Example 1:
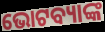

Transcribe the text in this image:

ଭୋଟବ୍ୟାଙ୍କ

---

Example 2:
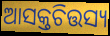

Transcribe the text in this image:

ଆସକ୍ତଚିତ୍ତସ୍ୟ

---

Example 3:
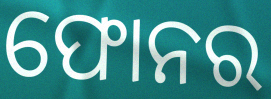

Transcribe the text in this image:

ଫୋନର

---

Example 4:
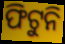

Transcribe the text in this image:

ଫିଟୁନି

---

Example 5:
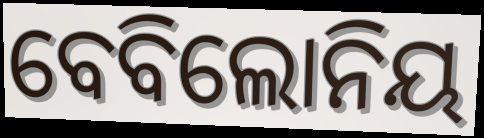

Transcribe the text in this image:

ବେବିଲୋନିୟ